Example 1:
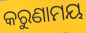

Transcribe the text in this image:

କରୁଣାମୟ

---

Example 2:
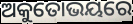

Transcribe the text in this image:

ଅକୁତୋଭୟରେ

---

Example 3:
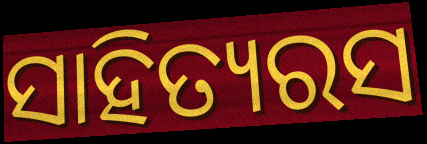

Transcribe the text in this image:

ସାହିତ୍ୟରସ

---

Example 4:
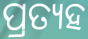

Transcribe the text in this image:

ପ୍ରତ୍ୟହ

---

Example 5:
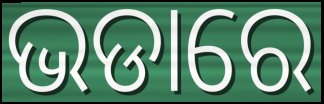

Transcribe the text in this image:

ଭଡାରେ